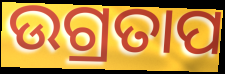
ଉଗ୍ରତାପ